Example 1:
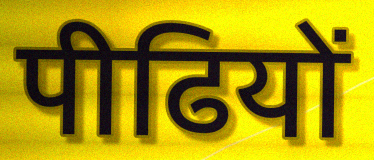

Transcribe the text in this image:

पीढियों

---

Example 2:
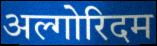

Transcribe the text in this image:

अल्गोरिदम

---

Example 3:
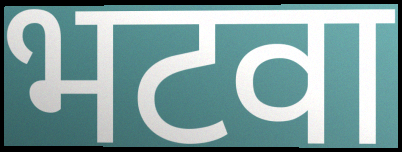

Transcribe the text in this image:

भटवा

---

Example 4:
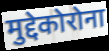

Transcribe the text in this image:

मुद्देकोरोना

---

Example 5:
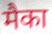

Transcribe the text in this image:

मैका